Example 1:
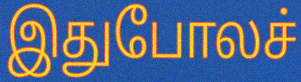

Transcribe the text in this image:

இதுபோலச்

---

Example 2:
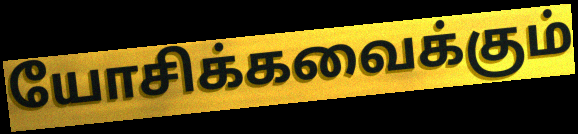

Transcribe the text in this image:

யோசிக்கவைக்கும்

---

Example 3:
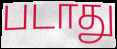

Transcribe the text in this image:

படாது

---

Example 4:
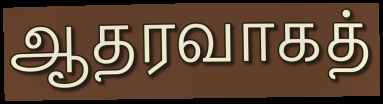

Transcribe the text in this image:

ஆதரவாகத்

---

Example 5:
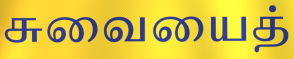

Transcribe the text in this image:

சுவையைத்